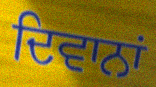
ਦਿਵਾਨਾਂ